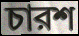
চারশ